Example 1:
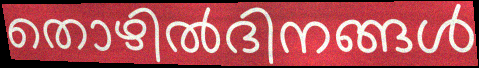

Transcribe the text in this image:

തൊഴിൽദിനങ്ങൾ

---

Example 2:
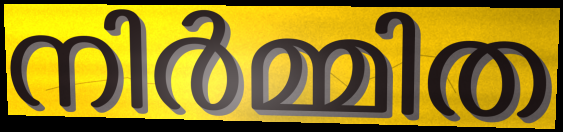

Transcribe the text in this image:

നിർമ്മിത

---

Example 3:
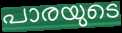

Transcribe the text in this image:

പാരയുടെ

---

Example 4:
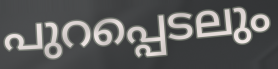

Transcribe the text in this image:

പുറപ്പെടലും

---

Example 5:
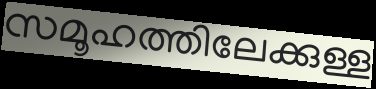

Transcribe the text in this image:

സമൂഹത്തിലേക്കുള്ള